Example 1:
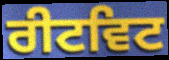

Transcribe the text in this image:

ਰੀਟਵਿਟ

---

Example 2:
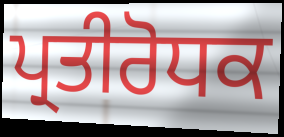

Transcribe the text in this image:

ਪ੍ਰਤੀਰੋਧਕ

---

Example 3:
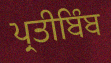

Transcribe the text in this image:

ਪ੍ਰਤੀਬਿੰਬ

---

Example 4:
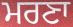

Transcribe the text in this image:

ਮਰਣਾ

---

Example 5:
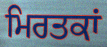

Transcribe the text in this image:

ਮਿਰਤਕਾਂ